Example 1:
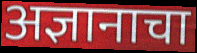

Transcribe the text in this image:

अज्ञानाचा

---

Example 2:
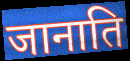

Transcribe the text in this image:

जानाति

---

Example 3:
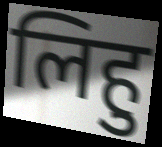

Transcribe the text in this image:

लिहु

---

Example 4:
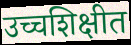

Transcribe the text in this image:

उच्चशिक्षीत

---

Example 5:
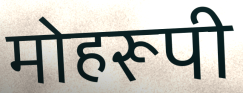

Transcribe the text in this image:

मोहरूपी